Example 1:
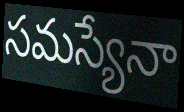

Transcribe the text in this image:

సమస్యేనా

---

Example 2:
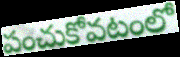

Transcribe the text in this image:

పంచుకోవటంలో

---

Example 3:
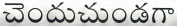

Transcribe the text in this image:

చెందుచుండగా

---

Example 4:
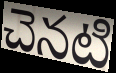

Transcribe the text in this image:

చెనటి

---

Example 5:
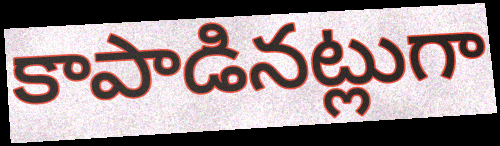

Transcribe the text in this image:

కాపాడినట్లుగా